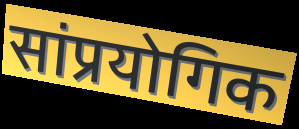
सांप्रयोगिक